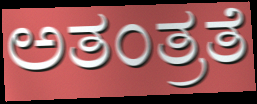
ಅತಂತ್ರತೆ